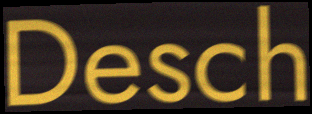
Desch